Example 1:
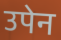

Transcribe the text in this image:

उपेन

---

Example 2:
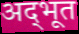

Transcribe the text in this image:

अद्‌भूत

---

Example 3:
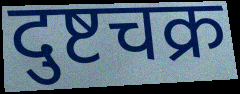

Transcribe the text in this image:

दुष्टचक्र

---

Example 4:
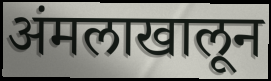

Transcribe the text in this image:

अंमलाखालून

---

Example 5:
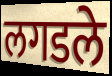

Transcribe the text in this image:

लगडले